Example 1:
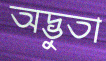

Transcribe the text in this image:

অদ্ভুতা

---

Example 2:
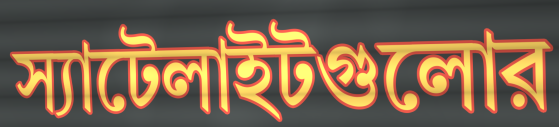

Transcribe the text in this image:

স্যাটেলাইটগুলোর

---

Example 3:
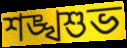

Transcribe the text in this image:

শঙ্খশুভ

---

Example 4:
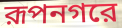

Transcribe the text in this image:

রূপনগরে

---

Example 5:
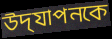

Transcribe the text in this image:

উদ্‌যাপনকে